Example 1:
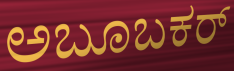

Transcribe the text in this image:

ಅಬೂಬಕರ್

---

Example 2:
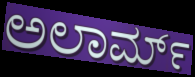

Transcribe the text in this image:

ಅಲಾರ್ಮ್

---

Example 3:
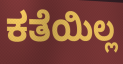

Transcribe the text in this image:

ಕತೆಯಿಲ್ಲ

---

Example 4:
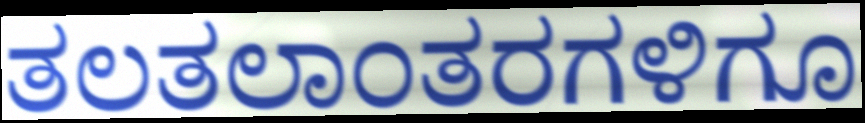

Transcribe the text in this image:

ತಲತಲಾಂತರಗಳಿಗೂ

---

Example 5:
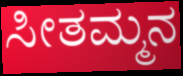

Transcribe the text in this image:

ಸೀತಮ್ಮನ